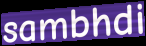
sambhdi